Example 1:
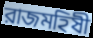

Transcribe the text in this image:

রাজমহিষী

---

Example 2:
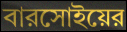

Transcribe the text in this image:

বারসোইয়ের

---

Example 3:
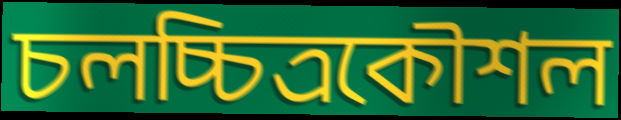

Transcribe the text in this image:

চলচ্চিত্রকৌশল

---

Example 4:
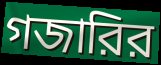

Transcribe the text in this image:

গজারির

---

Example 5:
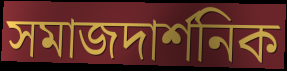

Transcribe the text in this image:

সমাজদার্শনিক